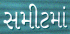
સમીટમાં